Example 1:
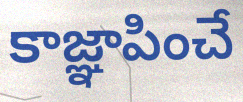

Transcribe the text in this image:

కాజ్ఞాపించే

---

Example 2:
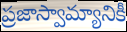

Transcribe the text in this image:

ప్రజాస్వామ్యానికీ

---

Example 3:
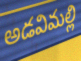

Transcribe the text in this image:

అడవిమల్లి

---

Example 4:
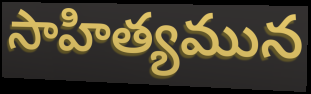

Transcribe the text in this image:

సాహిత్యమున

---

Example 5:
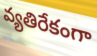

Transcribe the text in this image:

వ్యతిరేకంగా